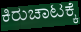
ಕಿರುಚಾಟಕ್ಕೆ